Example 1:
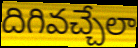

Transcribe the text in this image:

దిగివచ్చేలా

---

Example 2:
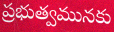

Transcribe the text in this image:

ప్రభుత్వమునకు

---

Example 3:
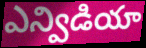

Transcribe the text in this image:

ఎన్విడియా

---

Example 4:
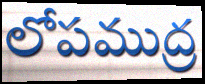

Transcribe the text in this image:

లోపముద్ర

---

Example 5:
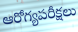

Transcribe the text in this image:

ఆరోగ్యపరీక్షలు